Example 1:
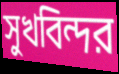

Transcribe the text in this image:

সুখবিন্দর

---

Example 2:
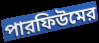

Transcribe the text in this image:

পারফিউমের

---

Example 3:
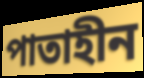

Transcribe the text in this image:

পাতাহীন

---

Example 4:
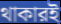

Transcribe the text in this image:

থাকারই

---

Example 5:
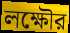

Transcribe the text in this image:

লক্ষৌর